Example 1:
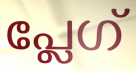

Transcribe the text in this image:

പ്ലേഗ്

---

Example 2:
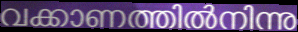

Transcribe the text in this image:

വക്കാണത്തിൽനിന്നു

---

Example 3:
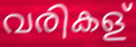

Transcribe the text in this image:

വരികള്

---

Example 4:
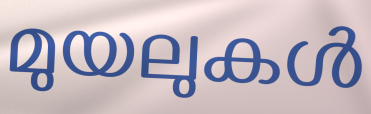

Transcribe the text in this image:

മുയലുകൾ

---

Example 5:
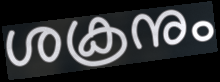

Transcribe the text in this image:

ശക്രനും